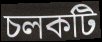
চলকটি